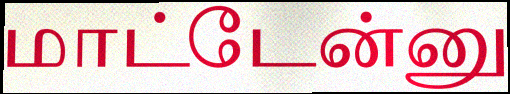
மாட்டேன்னு